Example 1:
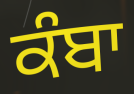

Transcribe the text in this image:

ਕੰਬਾ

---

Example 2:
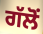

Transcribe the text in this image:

ਗੱਲੋਂ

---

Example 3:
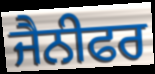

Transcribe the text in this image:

ਜੈਨੀਫਰ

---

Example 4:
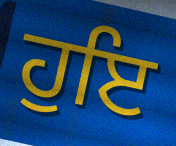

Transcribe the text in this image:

ਹੁਇ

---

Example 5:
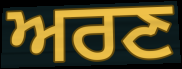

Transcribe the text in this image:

ਅਰਣ